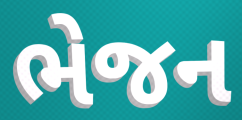
ભેજન